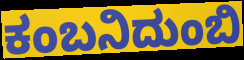
ಕಂಬನಿದುಂಬಿ